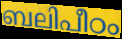
ബലിപീഠം